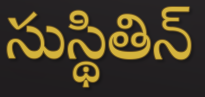
సుస్థితిన్